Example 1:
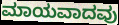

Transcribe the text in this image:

ಮಾಯವಾದವು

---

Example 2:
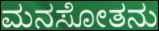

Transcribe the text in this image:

ಮನಸೋತನು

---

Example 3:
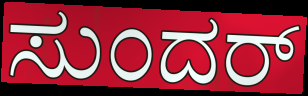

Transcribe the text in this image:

ಸುಂದರ್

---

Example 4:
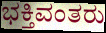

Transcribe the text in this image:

ಭಕ್ತಿವಂತರು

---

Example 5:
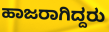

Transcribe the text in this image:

ಹಾಜರಾಗಿದ್ದರು